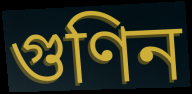
গুণিন